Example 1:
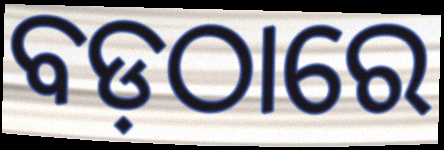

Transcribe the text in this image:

ବଡ଼ଠାରେ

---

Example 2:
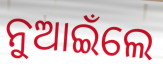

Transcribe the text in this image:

ନୁଆଇଁଲେ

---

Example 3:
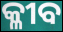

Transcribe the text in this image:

କ୍ଳୀବ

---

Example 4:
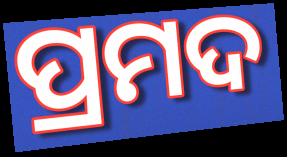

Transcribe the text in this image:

ପ୍ରମଦ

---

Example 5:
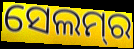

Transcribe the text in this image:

ସେଲମ୍‌ର